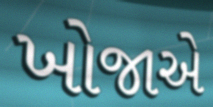
ખોજાએ